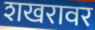
शखरावर